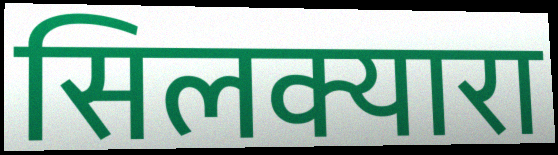
सिलक्यारा